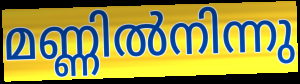
മണ്ണിൽനിന്നു